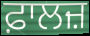
ਫ਼ਾਲਜ਼